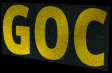
GOC